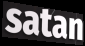
satan